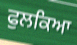
ਫੁਲਕਿਆ